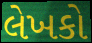
લેખકો